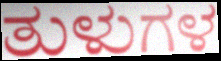
ತುಳುಗಳ